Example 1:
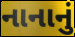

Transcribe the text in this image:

નાનાનું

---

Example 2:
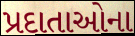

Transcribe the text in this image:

પ્રદાતાઓના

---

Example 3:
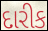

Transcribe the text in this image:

દારીક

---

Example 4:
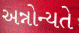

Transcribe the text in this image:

અન્નોન્યતે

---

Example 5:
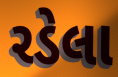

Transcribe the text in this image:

રડેલા